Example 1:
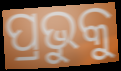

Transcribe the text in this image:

ପ୍ରଭୁକୁ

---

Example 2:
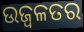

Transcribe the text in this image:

ଉଜ୍ବଳତର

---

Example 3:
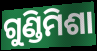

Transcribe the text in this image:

ଗୁଣ୍ଡିମିଶା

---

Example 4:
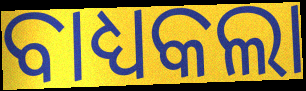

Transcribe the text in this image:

ବାଧ୍ୟକଲା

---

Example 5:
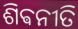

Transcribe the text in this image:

ଶିଵନୀତି